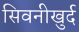
सिवनीखुर्द